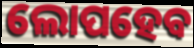
ଲୋପହେବ